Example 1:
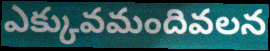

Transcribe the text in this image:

ఎక్కువమందివలన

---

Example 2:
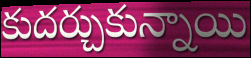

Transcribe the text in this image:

కుదర్చుకున్నాయి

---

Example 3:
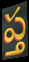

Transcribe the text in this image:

ప్త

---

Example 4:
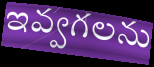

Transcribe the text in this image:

ఇవ్వగలను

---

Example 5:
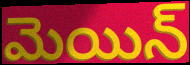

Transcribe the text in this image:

మెయిన్